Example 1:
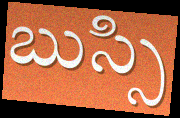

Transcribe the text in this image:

బుస్సి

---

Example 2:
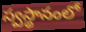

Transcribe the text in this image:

స్వస్థానంలో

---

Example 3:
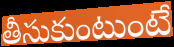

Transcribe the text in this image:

తీసుకుంటుంటే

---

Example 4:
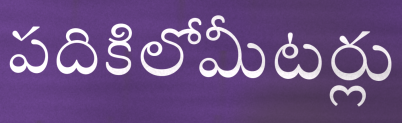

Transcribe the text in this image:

పదికిలోమీటర్లు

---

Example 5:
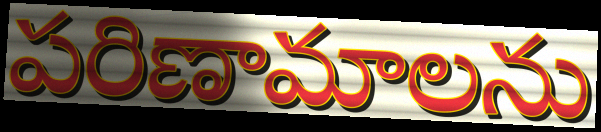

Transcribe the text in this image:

పరిణామాలను